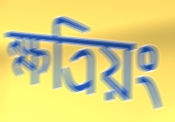
ক্ষত্রিয়ং